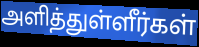
அளித்துள்ளீர்கள்